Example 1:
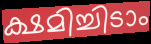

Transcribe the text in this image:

ക്ഷമിച്ചിടാം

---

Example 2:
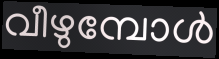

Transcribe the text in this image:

വീഴുമ്പോൾ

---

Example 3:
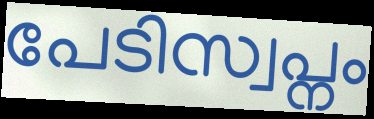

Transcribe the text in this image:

പേടിസ്വപ്നം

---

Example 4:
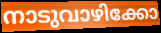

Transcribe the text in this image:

നാടുവാഴിക്കോ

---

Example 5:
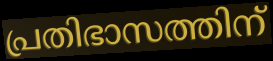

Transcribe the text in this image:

പ്രതിഭാസത്തിന്